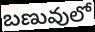
బణువులో